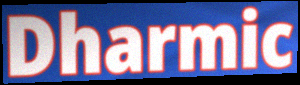
Dharmic